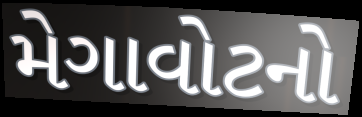
મેગાવોટનો